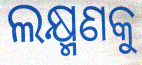
ଲକ୍ଷ୍ମଣକୁ